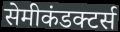
सेमीकंडक्टर्स